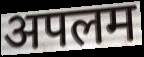
अपलम